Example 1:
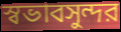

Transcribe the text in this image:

স্বভাবসুন্দর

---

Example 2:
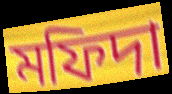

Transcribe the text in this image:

মফিদা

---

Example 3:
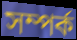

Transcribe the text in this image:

সম্পর্ক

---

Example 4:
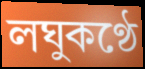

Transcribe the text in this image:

লঘুকণ্ঠে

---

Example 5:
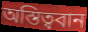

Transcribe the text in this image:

অস্তিত্ববান